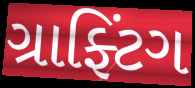
ગ્રાફ્ટિંગ